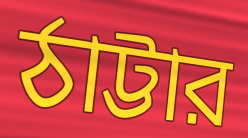
ঠাট্টার